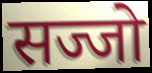
सज्जो